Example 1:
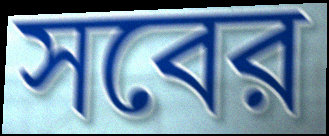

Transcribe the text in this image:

সবের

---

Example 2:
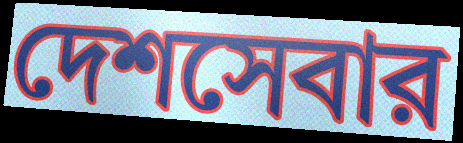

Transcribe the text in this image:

দেশসেবার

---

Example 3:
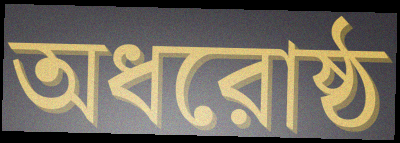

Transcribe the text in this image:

অধরোষ্ঠ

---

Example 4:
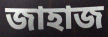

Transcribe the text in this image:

জাহাজ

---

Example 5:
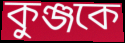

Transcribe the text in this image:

কুঞ্জকে